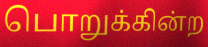
பொறுக்கின்ற